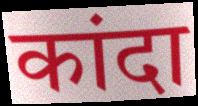
कांदा